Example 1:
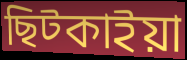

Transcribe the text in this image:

ছিট্কাইয়া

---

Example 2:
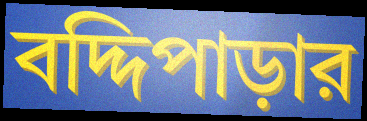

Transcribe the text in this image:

বদ্দিপাড়ার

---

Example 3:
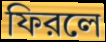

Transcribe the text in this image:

ফিরলে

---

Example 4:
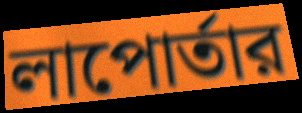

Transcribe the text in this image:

লাপোর্তার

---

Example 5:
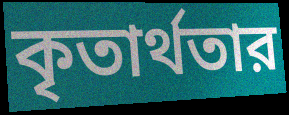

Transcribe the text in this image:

কৃতার্থতার